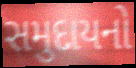
સમુદાયનો